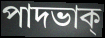
পাদভাক্